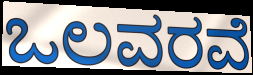
ಒಲವರವೆ